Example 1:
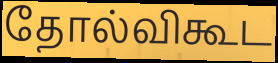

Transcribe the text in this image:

தோல்விகூட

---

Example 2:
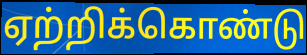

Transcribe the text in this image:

ஏற்றிக்கொண்டு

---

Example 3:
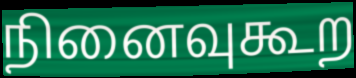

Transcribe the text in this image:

நினைவுகூற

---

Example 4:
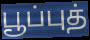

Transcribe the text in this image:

பூப்புத்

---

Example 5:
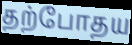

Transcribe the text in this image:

தற்போதய